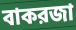
বাকরজা